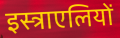
इस्त्राएलियों